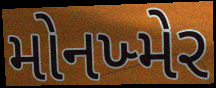
મોનખ્મેર